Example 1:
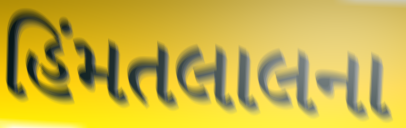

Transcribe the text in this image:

હિંમતલાલના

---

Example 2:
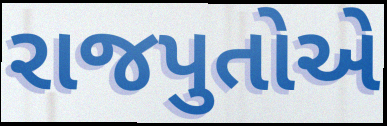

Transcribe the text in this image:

રાજપુતોએ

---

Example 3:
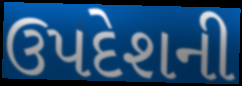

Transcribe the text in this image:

ઉપદેશની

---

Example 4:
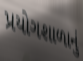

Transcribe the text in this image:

પ્રયોગશાળાનું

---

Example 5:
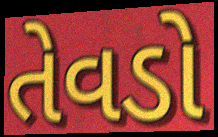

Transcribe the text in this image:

તેવડો